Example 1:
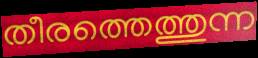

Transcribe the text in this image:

തീരത്തെത്തുന്ന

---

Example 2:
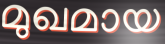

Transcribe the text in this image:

മുഖമായ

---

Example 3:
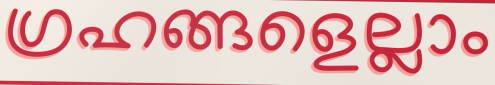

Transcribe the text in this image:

ഗ്രഹങ്ങളെല്ലാം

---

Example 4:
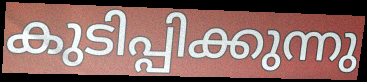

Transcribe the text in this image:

കുടിപ്പിക്കുന്നു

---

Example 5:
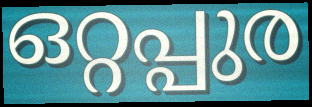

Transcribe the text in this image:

ഒറ്റപ്പുര